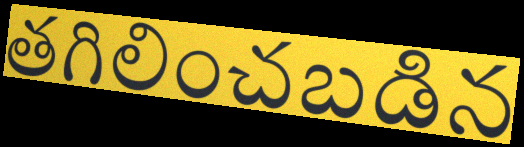
తగిలించబడిన